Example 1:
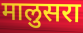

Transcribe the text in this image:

मालुसरा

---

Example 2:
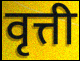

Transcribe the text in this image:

वृत्ती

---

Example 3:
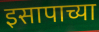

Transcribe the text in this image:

इसापाच्या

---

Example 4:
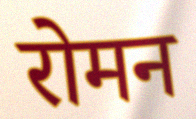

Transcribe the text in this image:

रोमन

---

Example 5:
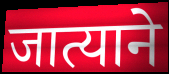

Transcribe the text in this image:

जात्याने